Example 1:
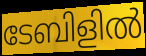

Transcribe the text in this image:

ടേബിളിൽ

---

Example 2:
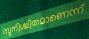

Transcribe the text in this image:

സുനിശ്ചിതമാണെന്ന്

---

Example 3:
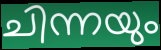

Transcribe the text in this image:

ചിന്നയും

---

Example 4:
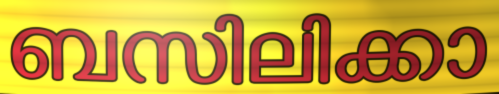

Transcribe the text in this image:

ബസിലിക്കാ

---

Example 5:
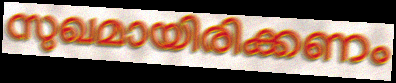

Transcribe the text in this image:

സുഖമായിരിക്കണം